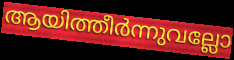
ആയിത്തീർന്നുവല്ലോ